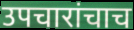
उपचारांचाच